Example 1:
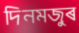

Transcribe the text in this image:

দিনমজুৰ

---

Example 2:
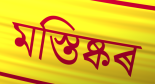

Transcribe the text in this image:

মস্তিষ্কৰ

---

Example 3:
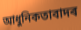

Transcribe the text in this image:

আধুনিকতাবাদৰ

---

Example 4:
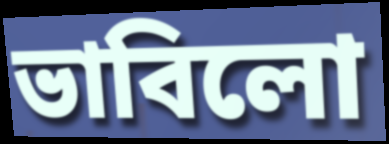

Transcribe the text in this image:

ভাবিলো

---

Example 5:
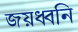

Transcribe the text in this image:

জয়ধ্বনি